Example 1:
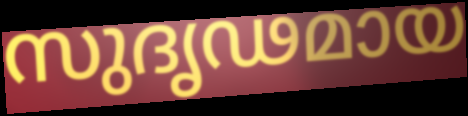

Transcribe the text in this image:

സുദൃഢമായ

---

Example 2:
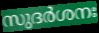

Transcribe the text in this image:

സുദർശനഃ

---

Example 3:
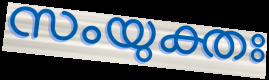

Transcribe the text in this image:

സംയുക്തഃ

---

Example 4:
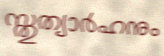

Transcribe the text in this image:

സ്തുത്യാർഹനും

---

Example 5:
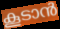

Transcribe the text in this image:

കൂടാൻ